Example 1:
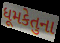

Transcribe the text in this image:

ધૂમકેતુના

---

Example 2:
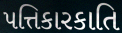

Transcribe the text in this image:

પત્તિકારકાતિ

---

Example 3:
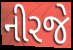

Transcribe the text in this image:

નીરજે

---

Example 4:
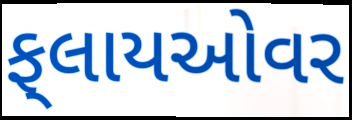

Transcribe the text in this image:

ફ્‌લાયઓવર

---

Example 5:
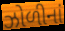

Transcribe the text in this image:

ઝોળીનાં